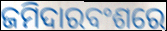
ଜମିଦାରବଂଶରେ